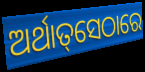
ଅର୍ଥାତ୍‌ସେଠାରେ